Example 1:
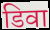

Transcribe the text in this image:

डिवा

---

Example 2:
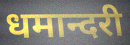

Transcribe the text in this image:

धमान्दरी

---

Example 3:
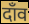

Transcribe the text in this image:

दाँव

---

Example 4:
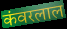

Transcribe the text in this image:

कंवरलाल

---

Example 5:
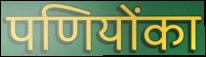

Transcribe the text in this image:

पणियोंका